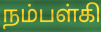
நம்பள்கி